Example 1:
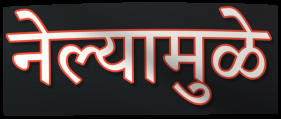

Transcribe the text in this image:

नेल्यामुळे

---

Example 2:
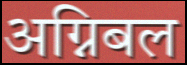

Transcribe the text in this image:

अग्निबल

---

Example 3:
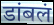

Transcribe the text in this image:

डांबलं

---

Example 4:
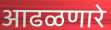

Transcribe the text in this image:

आढळणारे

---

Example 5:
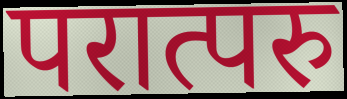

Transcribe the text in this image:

परात्परु